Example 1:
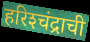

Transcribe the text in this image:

हरिश्‍चंद्राची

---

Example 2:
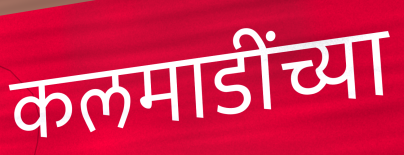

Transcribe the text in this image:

कलमाडींच्या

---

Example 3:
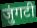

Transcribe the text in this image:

जुंगटी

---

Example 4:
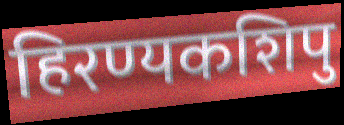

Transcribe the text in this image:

हिरण्यकशिपु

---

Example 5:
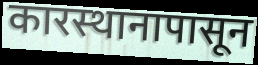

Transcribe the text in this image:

कारस्थानापासून